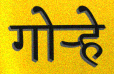
गोऱ्हे